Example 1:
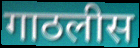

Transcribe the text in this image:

गाठलीस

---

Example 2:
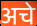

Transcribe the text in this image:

अचे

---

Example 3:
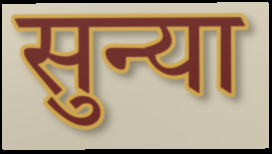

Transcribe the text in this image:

सुन्या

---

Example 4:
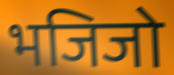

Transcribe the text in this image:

भजिजो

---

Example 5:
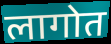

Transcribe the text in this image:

लागोत